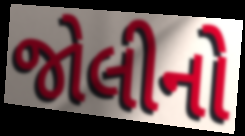
જોલીનો